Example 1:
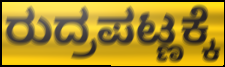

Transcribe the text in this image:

ರುದ್ರಪಟ್ಣಕ್ಕೆ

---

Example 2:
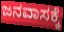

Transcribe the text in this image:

ಜನವಾಸಕ್ಕೆ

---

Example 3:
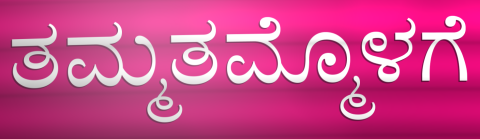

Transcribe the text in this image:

ತಮ್ಮತಮ್ಮೊಳಗೆ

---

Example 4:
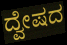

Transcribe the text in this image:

ದ್ವೇಷದ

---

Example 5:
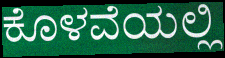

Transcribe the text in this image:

ಕೊಳವೆಯಲ್ಲಿ